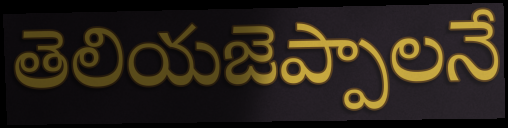
తెలియజెప్పాలనే